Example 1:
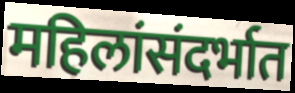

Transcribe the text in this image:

महिलांसंदर्भात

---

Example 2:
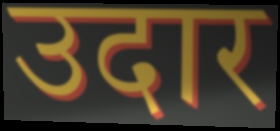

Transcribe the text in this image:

उदार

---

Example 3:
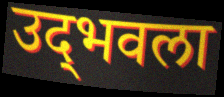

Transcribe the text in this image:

उद्‌भवला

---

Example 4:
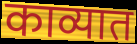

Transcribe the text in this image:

काव्यात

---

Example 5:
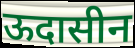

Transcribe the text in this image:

ऊदासीन